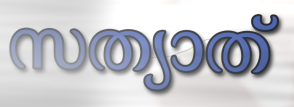
സത്യാത്